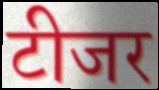
टीजर